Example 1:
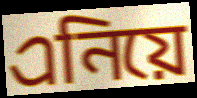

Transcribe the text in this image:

এনিয়ে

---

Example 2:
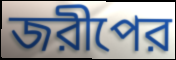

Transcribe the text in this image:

জরীপের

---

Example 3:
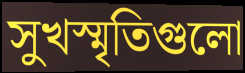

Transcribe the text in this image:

সুখস্মৃতিগুলো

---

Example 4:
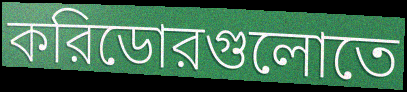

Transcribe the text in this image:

করিডোরগুলোতে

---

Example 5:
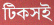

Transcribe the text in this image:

টিকসই